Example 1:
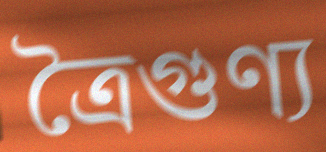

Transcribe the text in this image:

ত্রৈগুণ্য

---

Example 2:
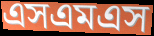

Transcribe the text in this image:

এসএমএস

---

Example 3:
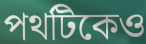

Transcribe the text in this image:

পথটিকেও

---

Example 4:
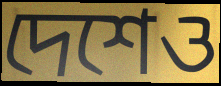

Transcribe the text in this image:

দেশেও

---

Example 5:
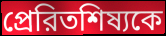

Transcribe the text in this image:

প্রেরিতশিষ্যকে